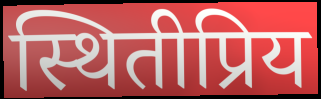
स्थितीप्रिय